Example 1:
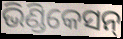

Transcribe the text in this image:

ଭିଣ୍ଡିକେସନ୍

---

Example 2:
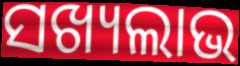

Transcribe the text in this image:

ସଖ୍ୟଲାଭ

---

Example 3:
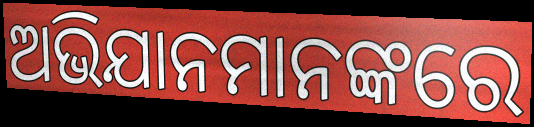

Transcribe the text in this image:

ଅଭିଯାନମାନଙ୍କରେ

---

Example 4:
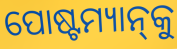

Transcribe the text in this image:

ପୋଷ୍ଟମ୍ୟାନ୍‌କୁ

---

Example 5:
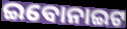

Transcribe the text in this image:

ଇବୋନାଇଟ